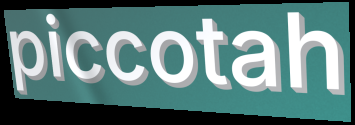
piccotah